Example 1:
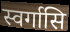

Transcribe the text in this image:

स्वर्गासि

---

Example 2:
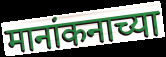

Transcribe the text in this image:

मानांकनाच्या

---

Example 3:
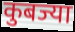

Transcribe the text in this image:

कुबज्या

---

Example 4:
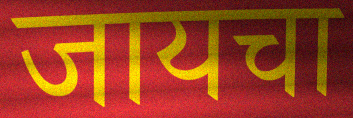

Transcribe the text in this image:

जायचा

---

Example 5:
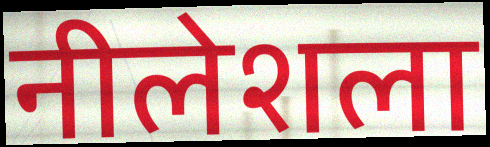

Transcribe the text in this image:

नीलेशला